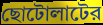
ছোটোলাটের